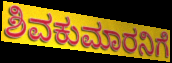
ಶಿವಕುಮಾರನಿಗೆ